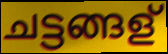
ചട്ടങ്ങള്